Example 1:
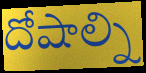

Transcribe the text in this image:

దోషాల్ని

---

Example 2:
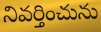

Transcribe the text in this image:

నివర్తించును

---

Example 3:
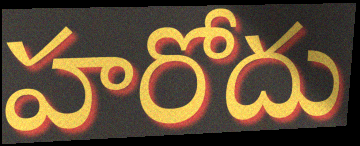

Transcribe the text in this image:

హరోదు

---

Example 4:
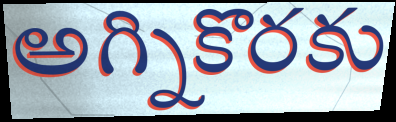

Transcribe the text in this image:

అగ్నికొరకు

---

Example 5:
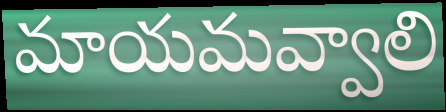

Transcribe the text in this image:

మాయమవ్వాలి